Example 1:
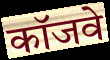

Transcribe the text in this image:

कॉजवे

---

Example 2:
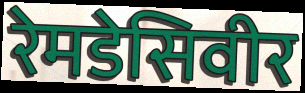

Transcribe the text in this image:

रेमडेसिवीर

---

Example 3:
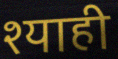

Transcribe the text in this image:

श्याही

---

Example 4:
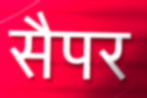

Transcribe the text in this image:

सैपर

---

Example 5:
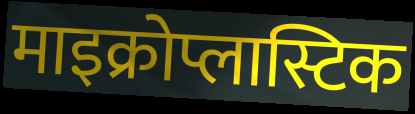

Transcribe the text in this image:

माइक्रोप्लास्टिक